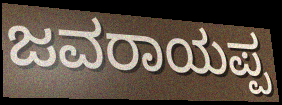
ಜವರಾಯಪ್ಪ